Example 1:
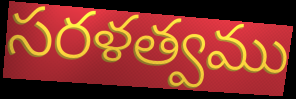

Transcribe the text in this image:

సరళత్వము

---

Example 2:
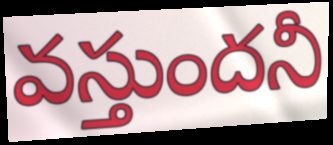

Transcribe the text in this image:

వస్తుందనీ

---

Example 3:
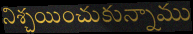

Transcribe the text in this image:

నిశ్చయించుకున్నాము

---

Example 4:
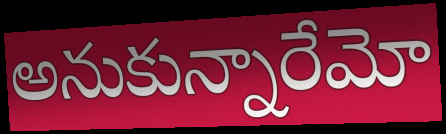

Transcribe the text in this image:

అనుకున్నారేమో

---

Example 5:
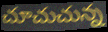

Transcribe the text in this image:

చూచుచున్న